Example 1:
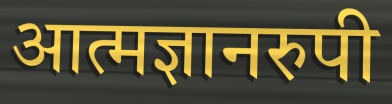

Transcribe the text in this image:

आत्मज्ञानरुपी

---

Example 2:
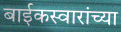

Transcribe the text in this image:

बाईकस्वारांच्या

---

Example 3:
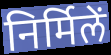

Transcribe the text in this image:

निर्मिलें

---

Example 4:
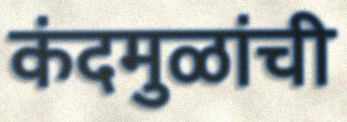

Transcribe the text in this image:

कंदमुळांची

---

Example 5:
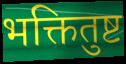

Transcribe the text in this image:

भक्तितुष्ट